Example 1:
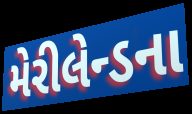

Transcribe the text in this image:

મેરીલેન્ડના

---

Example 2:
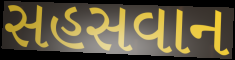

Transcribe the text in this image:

સહસવાન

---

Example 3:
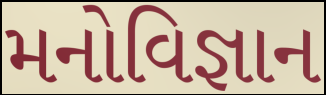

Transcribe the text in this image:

મનોવિજ્ઞાન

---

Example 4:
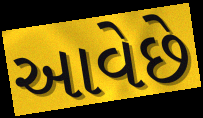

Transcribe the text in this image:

આવેછે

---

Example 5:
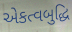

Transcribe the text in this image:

એકત્વબુદ્ધિ